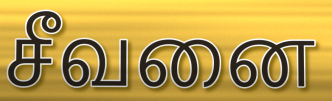
சீவனை